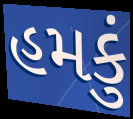
હમકું